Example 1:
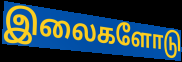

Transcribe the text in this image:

இலைகளோடு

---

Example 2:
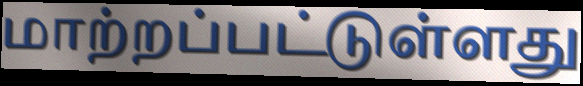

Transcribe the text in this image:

மாற்றப்பட்டுள்ளது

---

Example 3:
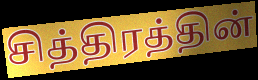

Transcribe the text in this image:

சித்திரத்தின்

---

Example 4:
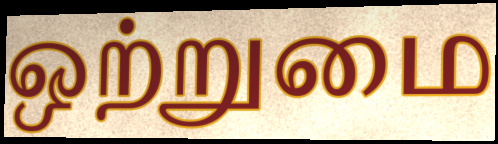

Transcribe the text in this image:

ஒற்றுமை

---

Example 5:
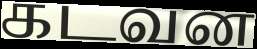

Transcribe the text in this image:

கடவன